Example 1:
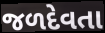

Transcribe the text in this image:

જળદેવતા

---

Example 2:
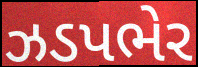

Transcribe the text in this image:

ઝડપભેર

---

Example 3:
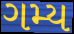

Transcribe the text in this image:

ગમ્ય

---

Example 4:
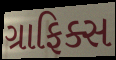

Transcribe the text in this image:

ગ્રાફિક્સ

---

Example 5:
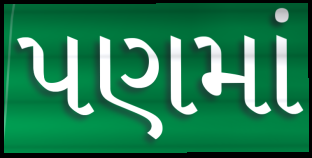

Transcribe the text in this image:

પણમાં